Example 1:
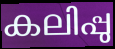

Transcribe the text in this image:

കലിപ്പു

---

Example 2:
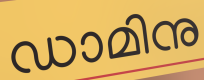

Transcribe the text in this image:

ഡാമിനു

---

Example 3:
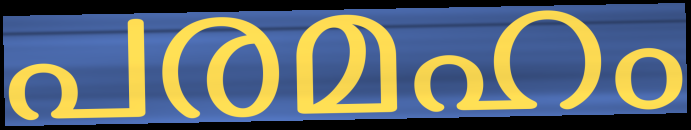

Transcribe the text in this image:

പരമഹം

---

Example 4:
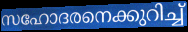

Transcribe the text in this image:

സഹോദരനെക്കുറിച്ച്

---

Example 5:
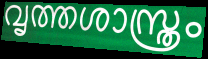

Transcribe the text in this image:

വൃത്തശാസ്ത്രം